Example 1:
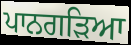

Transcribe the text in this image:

ਪਾਨਗੜਿਆ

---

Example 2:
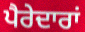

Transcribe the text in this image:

ਪੈਰੇਦਾਰਾਂ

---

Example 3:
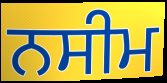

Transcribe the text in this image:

ਨਸੀਮ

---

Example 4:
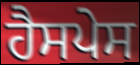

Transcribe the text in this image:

ਹੈਸਪੇਸ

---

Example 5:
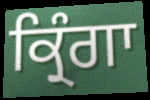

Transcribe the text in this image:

ਕ੍ਰਿੰਗਾ